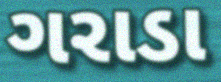
ગરાડા